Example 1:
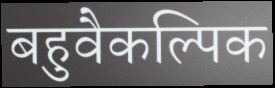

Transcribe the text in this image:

बहुवैकल्पिक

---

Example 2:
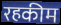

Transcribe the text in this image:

रहकीम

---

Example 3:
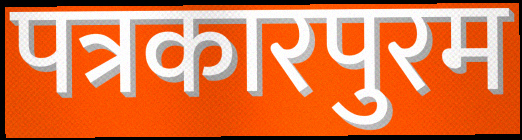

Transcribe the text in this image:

पत्रकारपुरम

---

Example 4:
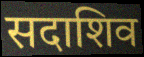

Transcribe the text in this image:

सदाशिव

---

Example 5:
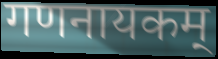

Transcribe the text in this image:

गणनायकम्